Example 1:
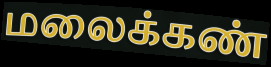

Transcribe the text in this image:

மலைக்கண்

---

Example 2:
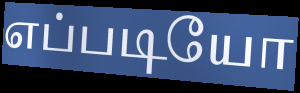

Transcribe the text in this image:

எப்படியோ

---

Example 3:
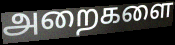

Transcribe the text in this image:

அறைகளை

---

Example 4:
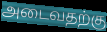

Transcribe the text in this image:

அடைவதற்கு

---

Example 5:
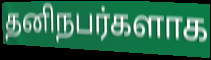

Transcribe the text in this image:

தனிநபர்களாக